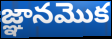
జ్ఞానమొక